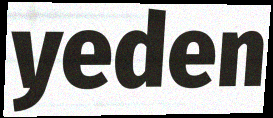
yeden